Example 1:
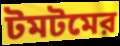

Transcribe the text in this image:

টমটমের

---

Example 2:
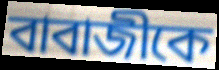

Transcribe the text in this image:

বাবাজীকে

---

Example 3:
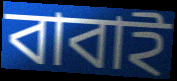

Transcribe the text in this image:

বাবাই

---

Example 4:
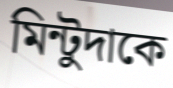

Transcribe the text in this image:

মিন্টুদাকে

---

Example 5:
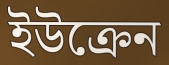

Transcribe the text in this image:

ইউক্রেন